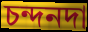
চন্দনদা